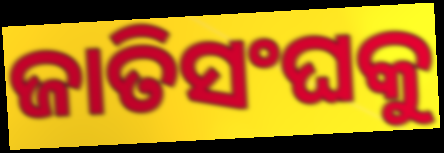
ଜାତିସଂଘକୁ